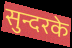
सुन्दरके